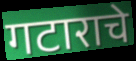
गटाराचे